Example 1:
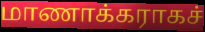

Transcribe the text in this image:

மாணாக்கராகச்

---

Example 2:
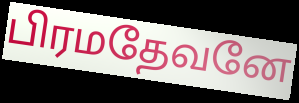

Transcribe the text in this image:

பிரமதேவனே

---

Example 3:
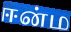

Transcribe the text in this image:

ஈன்ம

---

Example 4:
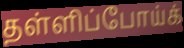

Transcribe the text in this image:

தள்ளிப்போய்க்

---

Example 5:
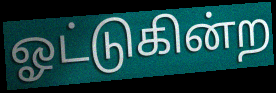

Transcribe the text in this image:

ஓட்டுகின்ற